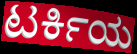
ಟರ್ಕಿಯ